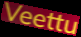
Veettu